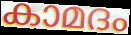
കാമദം